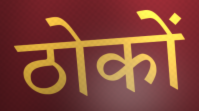
ठोकों